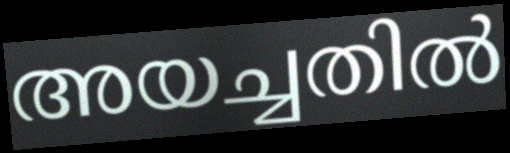
അയച്ചതിൽ